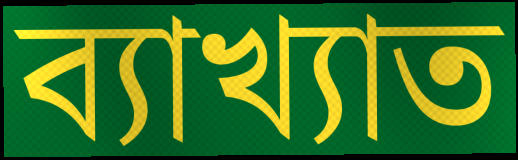
ব্যাখ্যাত